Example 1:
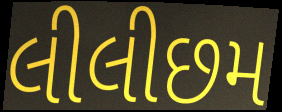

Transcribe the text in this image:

લીલીછમ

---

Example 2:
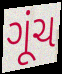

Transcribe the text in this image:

ગૂંચ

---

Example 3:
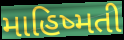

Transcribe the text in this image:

માહિષ્મતી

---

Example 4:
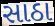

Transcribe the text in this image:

સાઠા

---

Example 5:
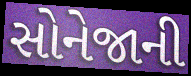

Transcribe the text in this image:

સોનેજાની